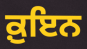
ਕ਼ੁਇਨ